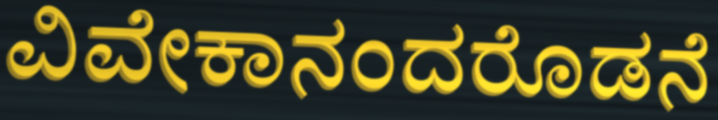
ವಿವೇಕಾನಂದರೊಡನೆ